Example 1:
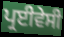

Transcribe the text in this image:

ਪ੍ਰਈਵੇਸੀ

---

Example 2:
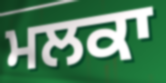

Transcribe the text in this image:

ਮਲਕਾ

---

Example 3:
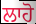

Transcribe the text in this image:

ਲਾਹੋ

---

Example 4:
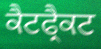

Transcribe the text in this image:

ਕੈਟਫ੍ਰੈਕਟ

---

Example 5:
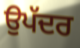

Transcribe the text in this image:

ਉਪੱਦਰ